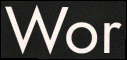
Wor